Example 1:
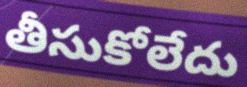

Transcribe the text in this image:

తీసుకోలేదు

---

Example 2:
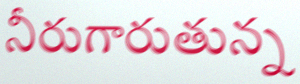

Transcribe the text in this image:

నీరుగారుతున్న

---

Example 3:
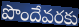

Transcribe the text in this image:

పొందేవరకు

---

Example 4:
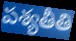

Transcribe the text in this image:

పశ్యతీతి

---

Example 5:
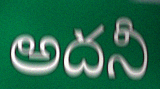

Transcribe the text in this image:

అదనీ